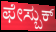
ಫೇಸ್ಬುಕ್